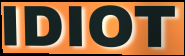
IDIOT